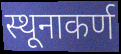
स्थूनाकर्ण